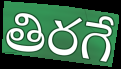
తిరగే